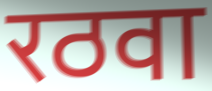
रठवा